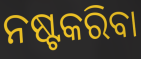
ନଷ୍ଟକରିବା